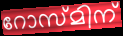
റോസ്മിന്